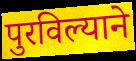
पुरविल्याने